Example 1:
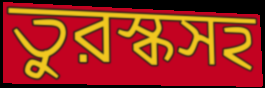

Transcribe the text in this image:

তুরস্কসহ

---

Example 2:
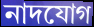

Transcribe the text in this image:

নাদযোগ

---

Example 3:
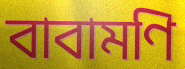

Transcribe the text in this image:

বাবামণি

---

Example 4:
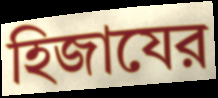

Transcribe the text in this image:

হিজাযের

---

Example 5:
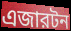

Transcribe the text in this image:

এজারটন